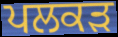
ਪਲਕੜ